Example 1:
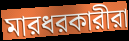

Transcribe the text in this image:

মারধরকারীরা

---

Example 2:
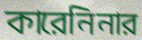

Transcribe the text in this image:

কারেনিনার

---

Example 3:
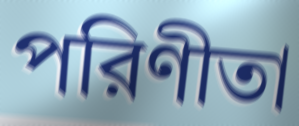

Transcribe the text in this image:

পরিণীতা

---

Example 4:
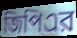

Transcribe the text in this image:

জিপিএর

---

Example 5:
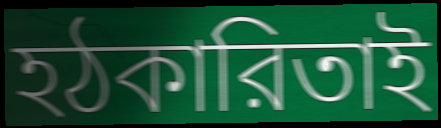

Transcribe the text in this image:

হঠকারিতাই